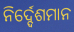
ନିର୍ଦ୍ଦେଶମାନ